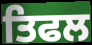
ਤਿਫਲ